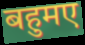
बहुमए